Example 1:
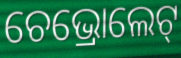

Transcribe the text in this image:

ଚେଭ୍ରୋଲେଟ୍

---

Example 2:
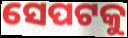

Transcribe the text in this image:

ସେପଟକୁ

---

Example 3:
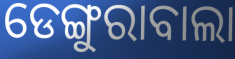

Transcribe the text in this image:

ଡେଙ୍ଗୁରାବାଲା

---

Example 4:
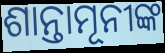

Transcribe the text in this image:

ଶାନ୍ତାମୂନୀଙ୍କ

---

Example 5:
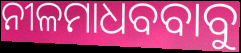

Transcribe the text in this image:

ନୀଳମାଧବବାବୁ